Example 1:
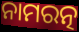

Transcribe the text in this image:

ନାମରତ୍ନ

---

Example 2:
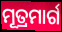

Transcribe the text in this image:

ମୂତ୍ରମାର୍ଗ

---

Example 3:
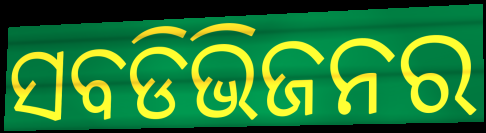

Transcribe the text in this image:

ସବଡିଭିଜନର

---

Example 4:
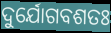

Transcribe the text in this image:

ଦୁର୍ଯୋଗବଶତଃ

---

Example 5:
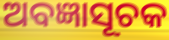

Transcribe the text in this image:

ଅବଜ୍ଞାସୂଚକ